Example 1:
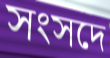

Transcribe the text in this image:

সংসদে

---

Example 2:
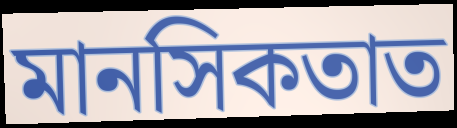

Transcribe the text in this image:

মানসিকতাত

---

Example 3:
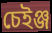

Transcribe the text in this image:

চেইঞ্জ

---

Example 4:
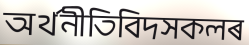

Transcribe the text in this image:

অৰ্থনীতিবিদসকলৰ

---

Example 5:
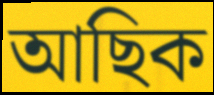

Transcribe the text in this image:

আছিক